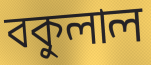
বকুলাল